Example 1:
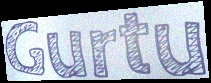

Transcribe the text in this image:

Gurtu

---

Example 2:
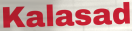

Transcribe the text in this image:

Kalasad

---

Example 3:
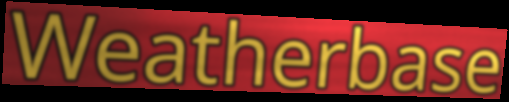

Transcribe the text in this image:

Weatherbase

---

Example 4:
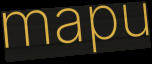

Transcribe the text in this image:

mapu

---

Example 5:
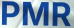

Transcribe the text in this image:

PMR